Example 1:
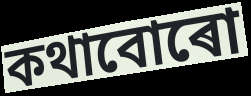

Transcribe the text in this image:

কথাবোৰো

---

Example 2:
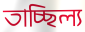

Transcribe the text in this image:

তাচ্ছিল্য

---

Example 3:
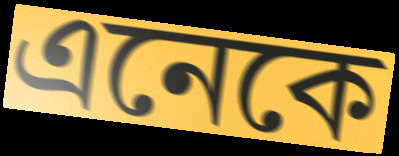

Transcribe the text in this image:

এনেকে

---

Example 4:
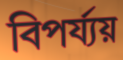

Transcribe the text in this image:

বিপৰ্য্যয়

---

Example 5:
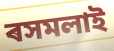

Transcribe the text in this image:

ৰসমলাই